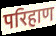
परिहाण